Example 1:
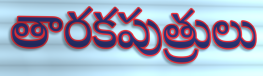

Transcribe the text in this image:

తారకపుత్రులు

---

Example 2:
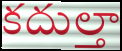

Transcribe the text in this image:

కదుల్తా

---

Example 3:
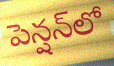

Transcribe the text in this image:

పెన్షన్‌లో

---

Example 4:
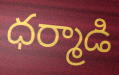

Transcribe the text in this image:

ధర్మాడి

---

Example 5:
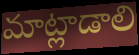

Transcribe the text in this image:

మాట్లాడాలి